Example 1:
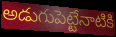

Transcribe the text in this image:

అడుగుపెట్టేనాటికి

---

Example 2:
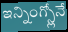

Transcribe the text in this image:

ఇన్నింగ్స్లోనే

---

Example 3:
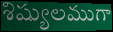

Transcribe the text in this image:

శిష్యులముగా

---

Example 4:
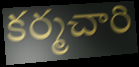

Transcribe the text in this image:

కర్మచారి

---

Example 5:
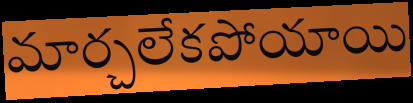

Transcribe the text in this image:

మార్చలేకపోయాయి